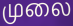
முலை